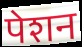
पेशन